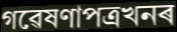
গৱেষণাপত্ৰখনৰ